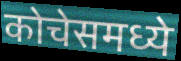
कोचेसमध्ये